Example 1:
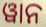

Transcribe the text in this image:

ୱାନ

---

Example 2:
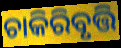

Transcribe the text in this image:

ଚାକିରିବୃତ୍ତି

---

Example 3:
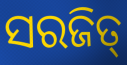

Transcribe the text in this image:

ସରଜିତ୍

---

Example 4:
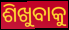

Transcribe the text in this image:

ଶିଖୁବାକୁ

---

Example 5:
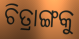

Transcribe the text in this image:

ଚିତ୍ରାଙ୍ଗକୁ